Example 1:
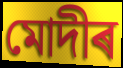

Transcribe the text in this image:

মোদীৰ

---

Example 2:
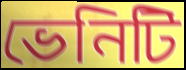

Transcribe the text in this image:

ভেনিটি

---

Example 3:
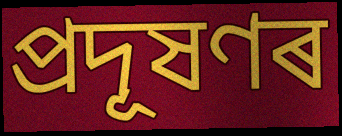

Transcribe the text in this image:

প্ৰদূষণৰ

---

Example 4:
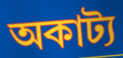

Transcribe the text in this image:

অকাট্য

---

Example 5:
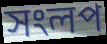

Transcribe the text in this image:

সংলপ